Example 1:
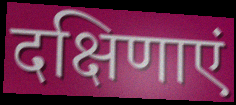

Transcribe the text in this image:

दक्षिणाएं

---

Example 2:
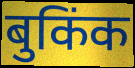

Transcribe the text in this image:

बुकिंक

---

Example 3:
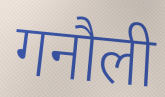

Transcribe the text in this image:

गनौली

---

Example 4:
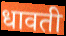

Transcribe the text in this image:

धावती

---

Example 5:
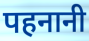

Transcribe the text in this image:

पहनानी